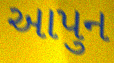
આપુન